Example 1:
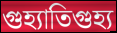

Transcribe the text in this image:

গুহ্যাতিগুহ্য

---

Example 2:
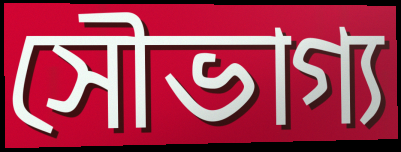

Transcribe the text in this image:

সৌভাগ্য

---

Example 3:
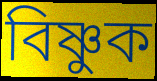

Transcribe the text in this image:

বিষ্ণুক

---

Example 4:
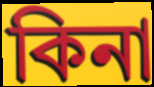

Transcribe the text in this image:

কিনা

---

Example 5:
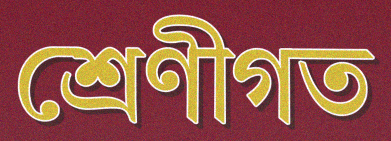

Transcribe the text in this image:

শ্ৰেণীগত